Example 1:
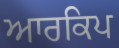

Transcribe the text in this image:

ਆਰਕਿਪ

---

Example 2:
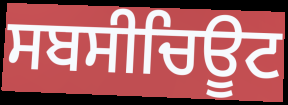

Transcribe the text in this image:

ਸਬਸੀਚਿਊਟ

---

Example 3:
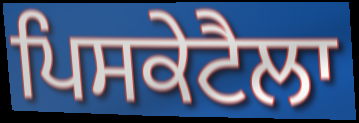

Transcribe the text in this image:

ਪਿਸਕੇਟੈਲਾ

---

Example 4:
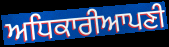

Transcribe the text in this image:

ਅਧਿਕਾਰੀਆਪਣੀ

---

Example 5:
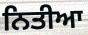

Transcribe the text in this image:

ਨਿਤੀਆ